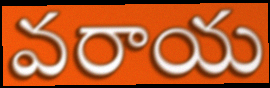
వరాయ